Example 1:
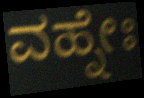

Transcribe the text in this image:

ವಹ್ನೇಃ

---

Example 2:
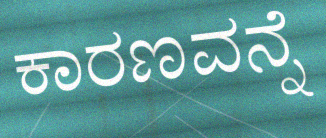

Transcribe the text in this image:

ಕಾರಣವನ್ನೆ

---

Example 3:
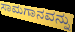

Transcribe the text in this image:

ಸಾಮಗಾನವನ್ನು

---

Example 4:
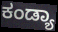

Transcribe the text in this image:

ಕಂಡ್ಯಾ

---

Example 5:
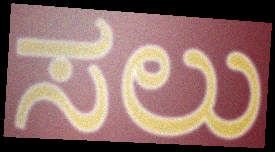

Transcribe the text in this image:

ಸಲು